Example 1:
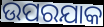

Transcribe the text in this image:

ଉପରଯାକ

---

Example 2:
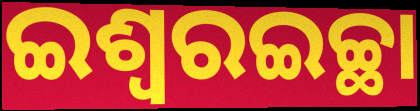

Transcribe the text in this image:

ଇଶ୍ୱରଇଚ୍ଛା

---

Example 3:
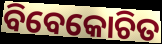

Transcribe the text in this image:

ବିବେକୋଚିତ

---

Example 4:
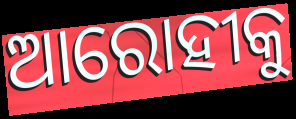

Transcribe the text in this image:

ଆରୋହୀକୁ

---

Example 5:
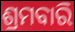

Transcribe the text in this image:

ଶ୍ରମବାରି